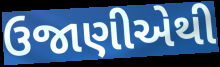
ઉજાણીએથી